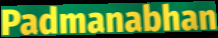
Padmanabhan